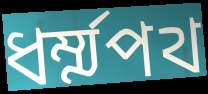
ধর্ম্মপথ